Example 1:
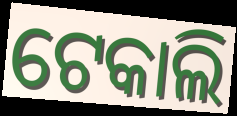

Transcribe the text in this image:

ଟେକାଲି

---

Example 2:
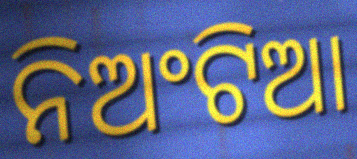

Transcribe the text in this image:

ନିଅଂଟିଆ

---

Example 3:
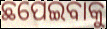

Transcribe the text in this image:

ଛପେଇବାକୁ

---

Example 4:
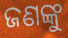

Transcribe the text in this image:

ଜଣଙ୍କୁ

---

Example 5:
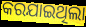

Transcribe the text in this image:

କରଯାଇଥିଲା